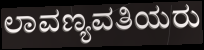
ಲಾವಣ್ಯವತಿಯರು